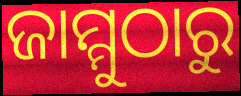
ଜାମ୍ମୁଠାରୁ